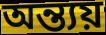
অন্ত্যয়